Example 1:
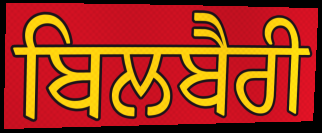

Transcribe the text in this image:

ਬਿਲਬੈਰੀ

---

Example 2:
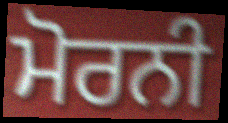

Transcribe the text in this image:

ਮੋਰਨੀ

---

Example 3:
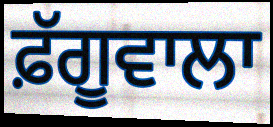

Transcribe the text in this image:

ਫ਼ੱਗੂਵਾਲਾ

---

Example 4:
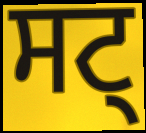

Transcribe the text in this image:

ਸਟ੍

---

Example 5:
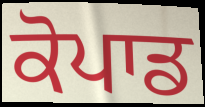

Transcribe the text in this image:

ਕੋਪਾਡ